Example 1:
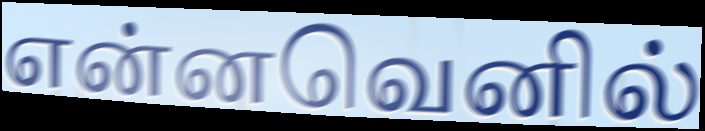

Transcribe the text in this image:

என்னவெனில்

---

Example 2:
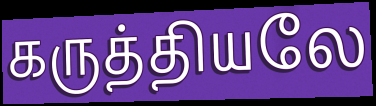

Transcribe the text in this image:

கருத்தியலே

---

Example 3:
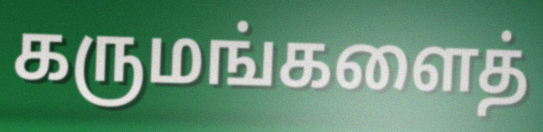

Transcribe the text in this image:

கருமங்களைத்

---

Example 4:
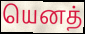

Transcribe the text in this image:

யெனத்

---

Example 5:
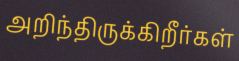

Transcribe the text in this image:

அறிந்திருக்கிறீர்கள்